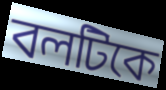
বলটিকে